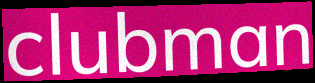
clubman